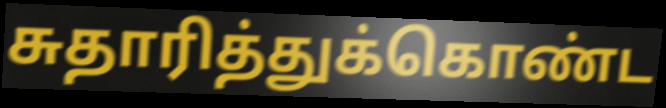
சுதாரித்துக்கொண்ட